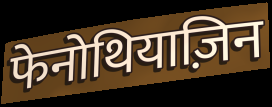
फेनोथियाज़िन